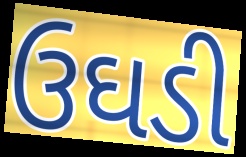
ઉઘડી